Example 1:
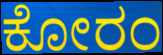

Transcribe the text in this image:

ಕೋರಂ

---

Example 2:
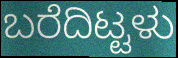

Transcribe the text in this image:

ಬರೆದಿಟ್ಟಳು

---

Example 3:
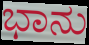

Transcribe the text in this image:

ಭಾನು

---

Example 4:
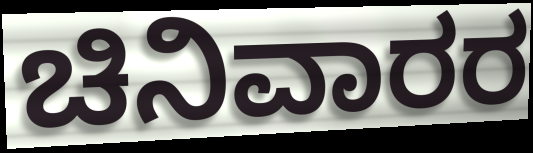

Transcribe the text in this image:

ಚಿನಿವಾರರ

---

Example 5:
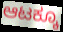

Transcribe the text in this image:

ಆಟಕ್ಕೂ